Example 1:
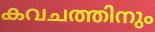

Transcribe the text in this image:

കവചത്തിനും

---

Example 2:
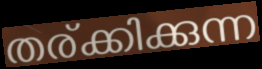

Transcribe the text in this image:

തര്ക്കിക്കുന്ന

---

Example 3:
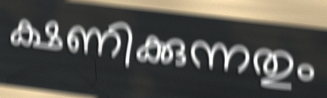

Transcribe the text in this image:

ക്ഷണിക്കുന്നതും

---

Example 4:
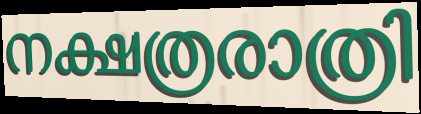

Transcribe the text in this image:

നക്ഷത്രരാത്രി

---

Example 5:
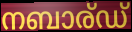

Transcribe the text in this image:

നബാര്ഡ്